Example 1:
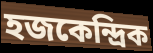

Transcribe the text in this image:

হজকেন্দ্রিক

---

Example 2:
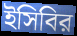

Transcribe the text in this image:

ইসিবির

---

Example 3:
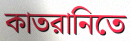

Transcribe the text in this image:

কাতরানিতে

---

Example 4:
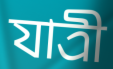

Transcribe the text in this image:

যাত্রী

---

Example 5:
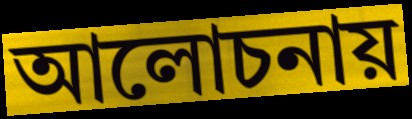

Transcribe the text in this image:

আলোচনায়